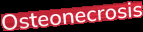
Osteonecrosis